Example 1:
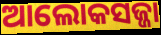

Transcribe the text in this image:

ଆଲୋକସଜ୍ଜା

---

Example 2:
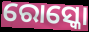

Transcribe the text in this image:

ରୋସ୍କୋ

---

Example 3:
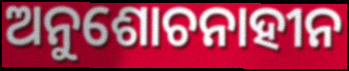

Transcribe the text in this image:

ଅନୁଶୋଚନାହୀନ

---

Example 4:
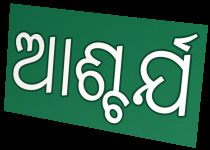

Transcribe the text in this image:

ଆଶ୍ଚର୍ଯ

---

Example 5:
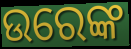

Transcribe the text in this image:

ଉରେଙ୍କ